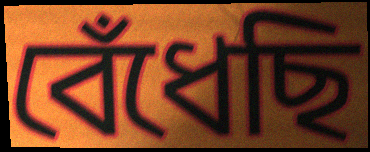
বেঁধেছি